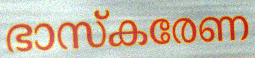
ഭാസ്കരേണ